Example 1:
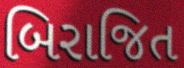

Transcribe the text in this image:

બિરાજિત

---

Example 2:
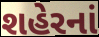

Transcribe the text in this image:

શહેરનાં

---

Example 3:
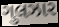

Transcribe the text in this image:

ગુલઝાર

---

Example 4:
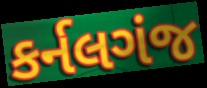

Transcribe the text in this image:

કર્નલગંજ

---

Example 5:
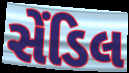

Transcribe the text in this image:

સેંડિલ